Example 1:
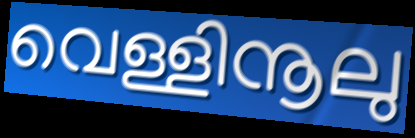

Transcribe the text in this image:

വെള്ളിനൂലു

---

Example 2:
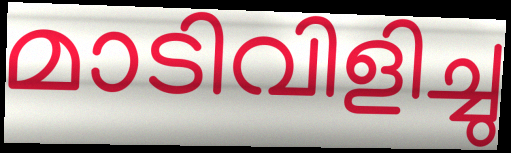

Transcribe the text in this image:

മാടിവിളിച്ചു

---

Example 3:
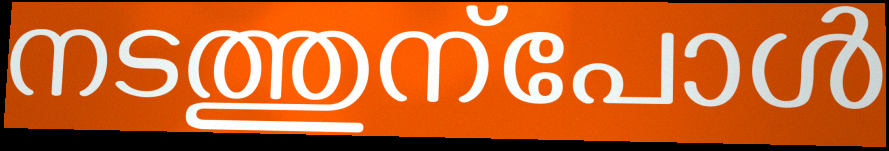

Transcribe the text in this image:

നടത്തുന്പോൾ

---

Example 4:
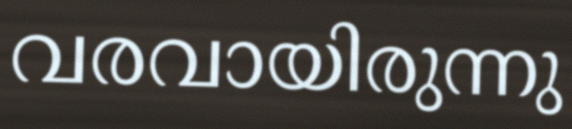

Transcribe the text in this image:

വരവായിരുന്നു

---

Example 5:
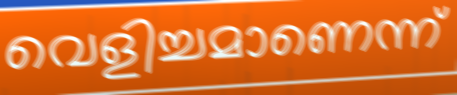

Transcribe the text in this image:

വെളിച്ചമാണെന്ന്